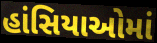
હાંસિયાઓમાં